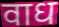
वाध